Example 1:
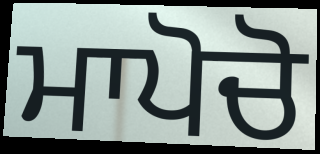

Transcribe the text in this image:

ਮਾਪੋਚੋ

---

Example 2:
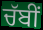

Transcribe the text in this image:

ਚੱਬੀਂ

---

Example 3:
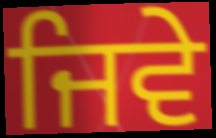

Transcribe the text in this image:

ਜਿਵੇ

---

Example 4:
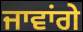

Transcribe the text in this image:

ਜਾਵਾਂਗੇ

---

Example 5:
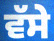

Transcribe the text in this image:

ਵੱਸੇ